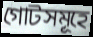
গোটসমূহে